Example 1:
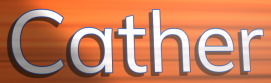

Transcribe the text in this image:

Cather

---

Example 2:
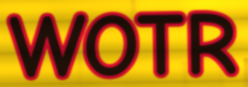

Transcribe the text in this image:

WOTR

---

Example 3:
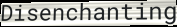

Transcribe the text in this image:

Disenchanting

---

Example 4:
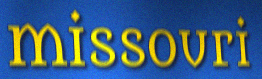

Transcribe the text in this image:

missouri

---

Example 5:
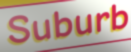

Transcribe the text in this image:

Suburb